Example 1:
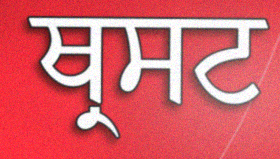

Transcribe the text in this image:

ਥ੍ਰਸਟ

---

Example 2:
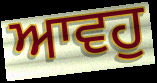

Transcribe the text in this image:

ਆਵਹੁ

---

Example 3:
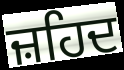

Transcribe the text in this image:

ਜ਼ਹਿਦ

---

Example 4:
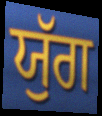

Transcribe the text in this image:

ਯੁੱਗ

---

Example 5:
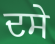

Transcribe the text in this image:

ਦਸੇ